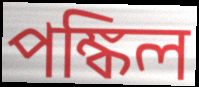
পঙ্কিল